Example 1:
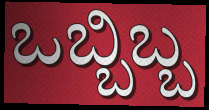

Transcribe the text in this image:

ಒಬ್ಬಿಬ್ಬ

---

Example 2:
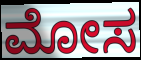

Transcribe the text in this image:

ಮೋಸ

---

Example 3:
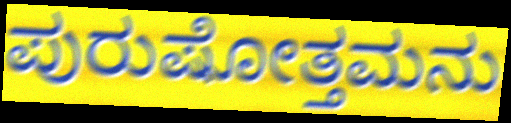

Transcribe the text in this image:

ಪುರುಷೋತ್ತಮನು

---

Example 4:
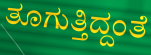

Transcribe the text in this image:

ತೂಗುತ್ತಿದ್ದಂತೆ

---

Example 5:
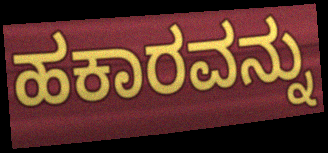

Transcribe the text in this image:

ಹಕಾರವನ್ನು